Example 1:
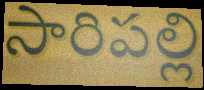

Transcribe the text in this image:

సారిపల్లి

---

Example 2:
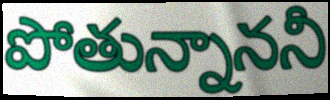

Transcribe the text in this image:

పోతున్నాననీ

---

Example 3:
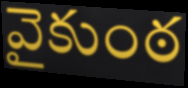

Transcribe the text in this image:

వైకుంఠ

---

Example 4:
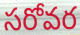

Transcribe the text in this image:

సరోవర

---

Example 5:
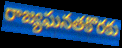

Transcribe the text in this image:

రాజ్యఘనతకొరకు